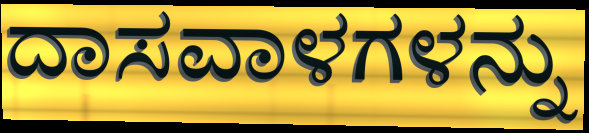
ದಾಸವಾಳಗಳನ್ನು